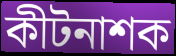
কীটনাশক